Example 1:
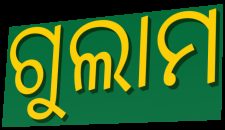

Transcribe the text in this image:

ଗୁଲାମ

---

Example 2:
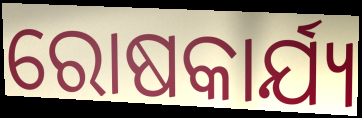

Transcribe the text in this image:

ରୋଷକାର୍ଯ୍ୟ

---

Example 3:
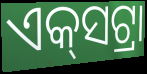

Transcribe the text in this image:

ଏକ୍‍ସଟ୍ରା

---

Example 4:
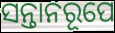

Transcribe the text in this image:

ସନ୍ତାନରୂପେ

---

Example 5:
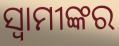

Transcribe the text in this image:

ସ୍ୱାମୀଙ୍କର